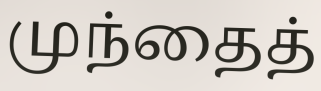
முந்தைத்